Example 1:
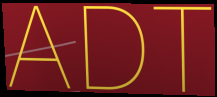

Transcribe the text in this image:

ADT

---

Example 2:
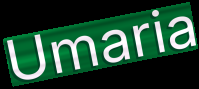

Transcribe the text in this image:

Umaria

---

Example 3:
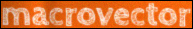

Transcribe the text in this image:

macrovector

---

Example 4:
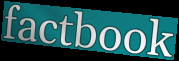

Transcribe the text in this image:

factbook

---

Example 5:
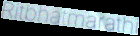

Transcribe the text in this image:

Ritbhatmarathi